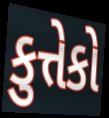
કુત્તેકો